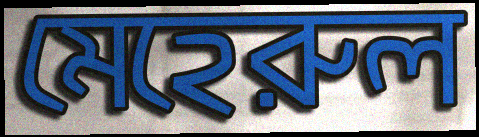
মেহেরুল